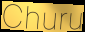
Churu